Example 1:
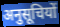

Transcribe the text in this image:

अनुसूचियों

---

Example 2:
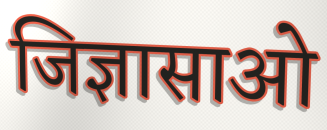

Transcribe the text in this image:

जिज्ञासाओ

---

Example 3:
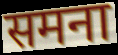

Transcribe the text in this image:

समना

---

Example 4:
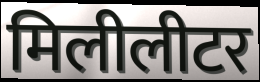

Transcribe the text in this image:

मिलीलीटर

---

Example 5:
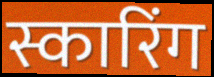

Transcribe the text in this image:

स्कारिंग